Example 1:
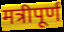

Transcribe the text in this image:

मत्रीपूर्ण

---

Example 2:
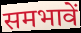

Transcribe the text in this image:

समभावें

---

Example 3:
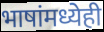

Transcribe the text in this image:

भाषांमध्येही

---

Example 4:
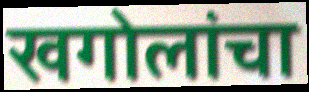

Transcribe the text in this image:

खगोलांचा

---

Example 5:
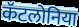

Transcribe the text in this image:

कॅटलोनिया